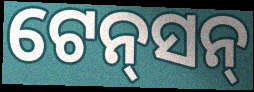
ଟେନ୍‌ସନ୍